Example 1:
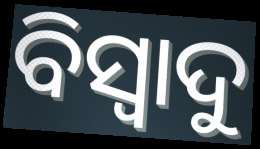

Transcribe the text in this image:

ବିସ୍ୱାଦୁ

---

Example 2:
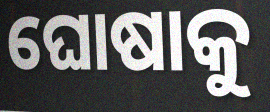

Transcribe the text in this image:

ଘୋଷାକୁ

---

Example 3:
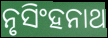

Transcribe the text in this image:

ନୃସିଂହନାଥ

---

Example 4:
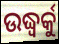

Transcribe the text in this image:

ଉଦ୍ଧ୍ୱର୍କୁ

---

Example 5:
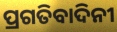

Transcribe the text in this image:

ପ୍ରଗତିବାଦିନୀ